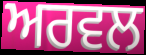
ਅਰਵਲ